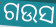
ଗଉସ